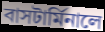
বাসটার্মিনালে